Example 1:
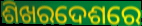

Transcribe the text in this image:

ଶିଖରଦେଶରେ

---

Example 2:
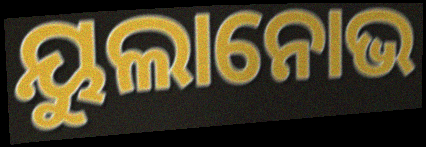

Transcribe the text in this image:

ୟୁଲାନୋଭ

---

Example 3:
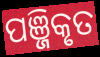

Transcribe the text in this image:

ପଞ୍ଜିକୃତ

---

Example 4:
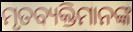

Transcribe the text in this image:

ମୃତବ୍ୟକ୍ତିମାନଙ୍କ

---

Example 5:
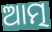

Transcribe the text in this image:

ଆତ୍ମ